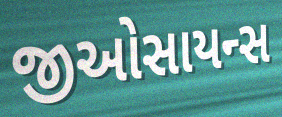
જીઓસાયન્સ